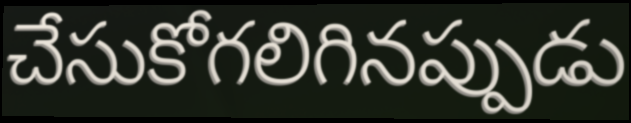
చేసుకోగలిగినప్పుడు